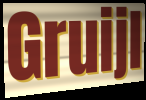
Gruijl